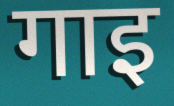
गाइ